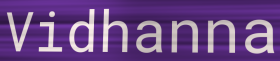
Vidhanna